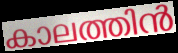
കാലത്തിൻ